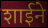
शाईने